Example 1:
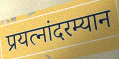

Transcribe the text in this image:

प्रयत्नांदरम्यान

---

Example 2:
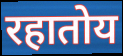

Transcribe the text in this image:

रहातोय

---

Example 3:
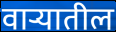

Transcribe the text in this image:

वाऱ्यातील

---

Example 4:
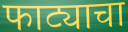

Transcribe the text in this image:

फाट्याचा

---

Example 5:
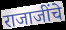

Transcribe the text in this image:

राजाजींचे